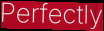
Perfectly